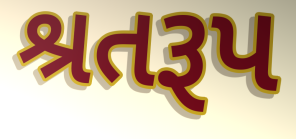
શ્રતરૂપ